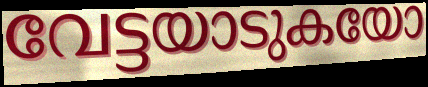
വേട്ടയാടുകയോ